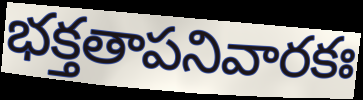
భక్తతాపనివారకః